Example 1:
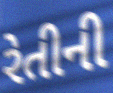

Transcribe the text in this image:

રેતીની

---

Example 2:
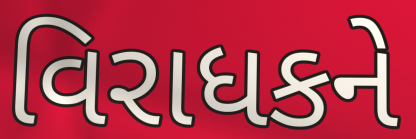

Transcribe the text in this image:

વિરાધકને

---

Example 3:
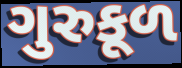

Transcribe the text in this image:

ગુરુકૂળ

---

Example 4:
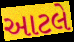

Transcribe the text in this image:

આટલે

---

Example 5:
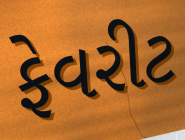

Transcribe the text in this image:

ફેવરીટ